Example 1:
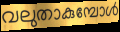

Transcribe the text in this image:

വലുതാകുമ്പോൾ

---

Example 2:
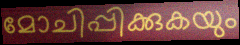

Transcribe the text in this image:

മോചിപ്പിക്കുകയും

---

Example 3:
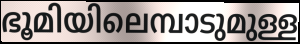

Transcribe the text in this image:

ഭൂമിയിലെമ്പാടുമുള്ള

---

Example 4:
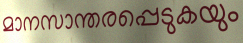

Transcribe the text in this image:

മാനസാന്തരപ്പെടുകയും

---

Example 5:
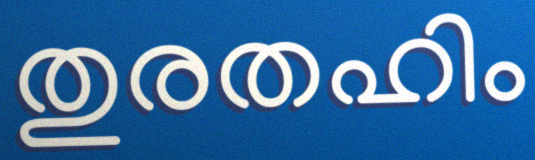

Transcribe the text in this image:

തുരതഹിം